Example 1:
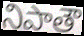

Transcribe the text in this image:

నిపాతౌ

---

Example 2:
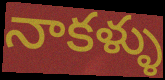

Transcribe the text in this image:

నాకళ్ళు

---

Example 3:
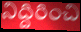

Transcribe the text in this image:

నిద్దిరించి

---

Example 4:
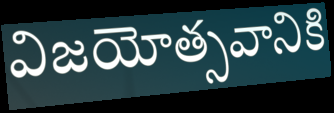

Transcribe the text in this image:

విజయోత్సవానికి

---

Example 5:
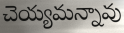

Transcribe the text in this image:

చెయ్యమన్నావు